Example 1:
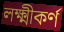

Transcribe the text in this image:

লক্ষ্মীকর্ণ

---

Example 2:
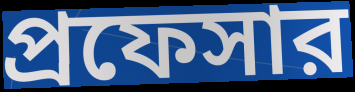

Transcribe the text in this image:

প্রফেসার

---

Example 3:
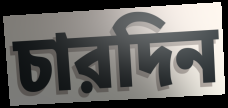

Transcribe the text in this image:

চারদিন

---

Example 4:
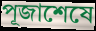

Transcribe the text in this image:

পূজাশেষে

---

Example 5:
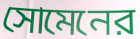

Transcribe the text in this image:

সোমেনের